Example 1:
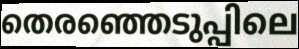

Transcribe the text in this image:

തെരഞ്ഞെടുപ്പിലെ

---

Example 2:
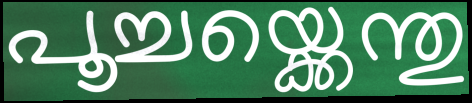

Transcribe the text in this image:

പൂച്ചയ്ക്കെന്തു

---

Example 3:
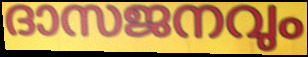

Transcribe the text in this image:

ദാസജനവും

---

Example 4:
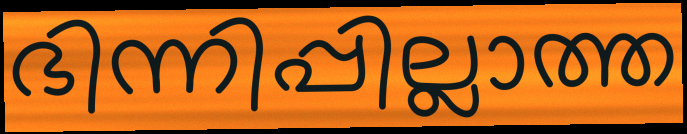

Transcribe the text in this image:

ഭിന്നിപ്പില്ലാത്ത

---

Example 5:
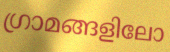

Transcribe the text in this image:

ഗ്രാമങ്ങളിലോ